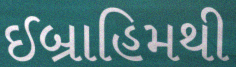
ઈબ્રાહિમથી